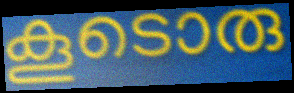
കൂടൊരു